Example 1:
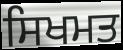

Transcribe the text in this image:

ਸਿਖਮਤ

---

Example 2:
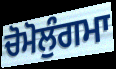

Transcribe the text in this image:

ਚੋਮੋਲੁੰਗਮਾ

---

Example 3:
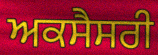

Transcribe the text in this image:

ਅਕਸੈਸਰੀ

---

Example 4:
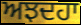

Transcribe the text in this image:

ਅਝਦਹਾ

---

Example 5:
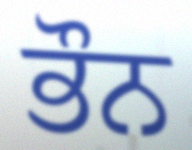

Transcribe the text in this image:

ਭੌਨ